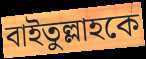
বাইতুল্লাহকে